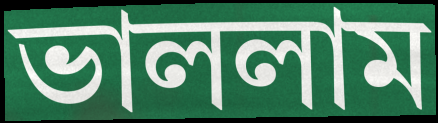
ভাললাম